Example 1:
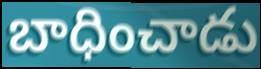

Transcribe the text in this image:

బాధించాడు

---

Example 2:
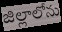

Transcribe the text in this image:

జిల్లాలోను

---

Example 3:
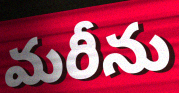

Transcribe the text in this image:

మరీను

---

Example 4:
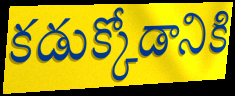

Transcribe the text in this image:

కడుక్కోడానికి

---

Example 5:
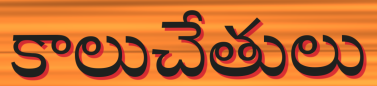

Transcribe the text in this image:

కాలుచేతులు